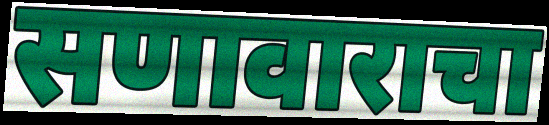
सणावाराचा